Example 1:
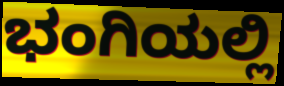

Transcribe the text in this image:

ಭಂಗಿಯಲ್ಲಿ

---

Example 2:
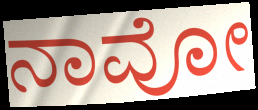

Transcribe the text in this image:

ನಾವೋ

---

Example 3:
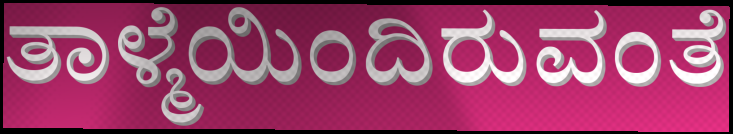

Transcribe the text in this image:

ತಾಳ್ಮೆಯಿಂದಿರುವಂತೆ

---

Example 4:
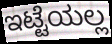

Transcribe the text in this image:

ಇಟ್ಟೆಯಲ್ಲ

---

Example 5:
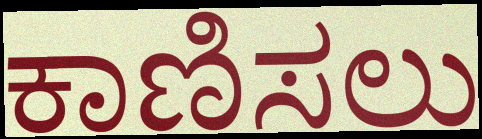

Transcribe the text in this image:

ಕಾಣಿಸಲು